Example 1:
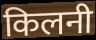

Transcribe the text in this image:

किलनी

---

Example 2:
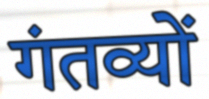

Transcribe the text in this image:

गंतव्यों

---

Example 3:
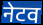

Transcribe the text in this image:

नेटव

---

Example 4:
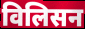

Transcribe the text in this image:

विलिसन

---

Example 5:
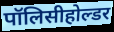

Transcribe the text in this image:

पॉलिसीहोल्डर